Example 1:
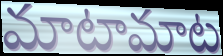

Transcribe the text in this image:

మాటామాట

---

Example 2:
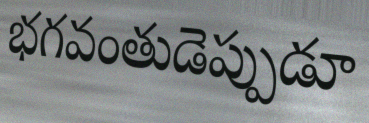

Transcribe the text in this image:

భగవంతుడెప్పుడూ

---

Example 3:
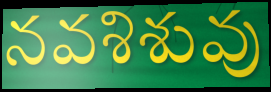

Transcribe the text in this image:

నవశిశువు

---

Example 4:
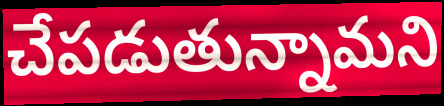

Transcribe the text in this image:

చేపడుతున్నామని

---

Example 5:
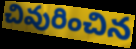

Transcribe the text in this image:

చివురించిన